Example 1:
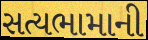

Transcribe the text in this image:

સત્યભામાની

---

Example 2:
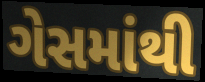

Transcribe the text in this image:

ગેસમાંથી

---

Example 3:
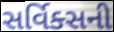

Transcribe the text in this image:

સર્વિક્સની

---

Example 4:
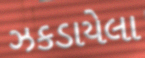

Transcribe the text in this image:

ઝકડાયેલા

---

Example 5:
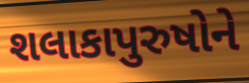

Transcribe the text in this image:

શલાકાપુરુષોને